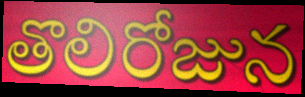
తొలిరోజున